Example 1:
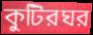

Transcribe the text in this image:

কুটিরঘর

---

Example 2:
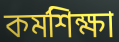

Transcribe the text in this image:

কর্মশিক্ষা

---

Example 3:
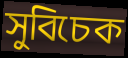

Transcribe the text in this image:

সুবিচেক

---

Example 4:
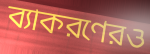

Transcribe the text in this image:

ব্যাকরণেরও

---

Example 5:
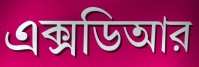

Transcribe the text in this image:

এক্সডিআর